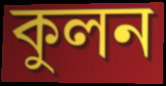
কুলন